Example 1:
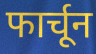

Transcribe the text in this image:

फार्चून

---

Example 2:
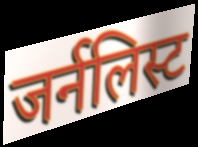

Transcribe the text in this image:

जर्नलिस्ट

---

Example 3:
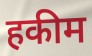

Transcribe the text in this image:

हकीम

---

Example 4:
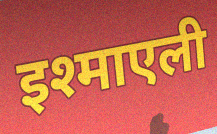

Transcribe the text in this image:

इश्माएली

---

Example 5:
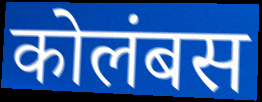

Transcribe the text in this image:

कोलंबस